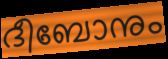
ദീബോനും